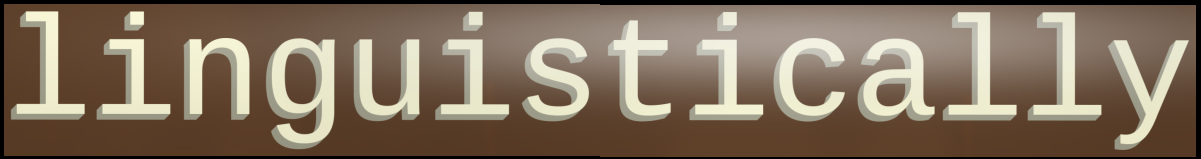
linguistically